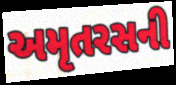
અમૃતરસની